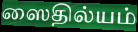
ஸைதில்யம்